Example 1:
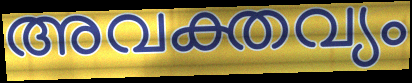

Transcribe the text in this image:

അവക്തവ്യം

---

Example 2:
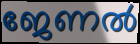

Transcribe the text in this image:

ജേണൽ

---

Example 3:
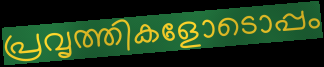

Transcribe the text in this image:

പ്രവൃത്തികളോടൊപ്പം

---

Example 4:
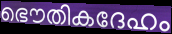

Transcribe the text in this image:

ഭൌതികദേഹം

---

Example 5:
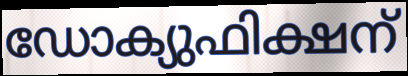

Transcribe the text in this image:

ഡോക്യുഫിക്ഷന്